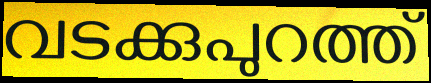
വടക്കുപുറത്ത്